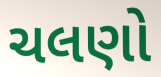
ચલણો